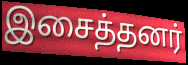
இசைத்தனர்